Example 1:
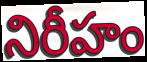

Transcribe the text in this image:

నిరీహం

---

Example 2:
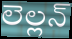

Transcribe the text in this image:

లెల్లన్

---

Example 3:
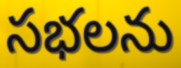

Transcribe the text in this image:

సభలను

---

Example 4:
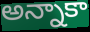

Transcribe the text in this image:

అన్నాకా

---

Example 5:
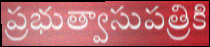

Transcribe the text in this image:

ప్రభుత్వాసుపత్రికి